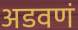
अडवणं